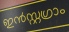
ഇൻസ്റ്റഗ്രാം